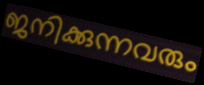
ജനിക്കുന്നവരും